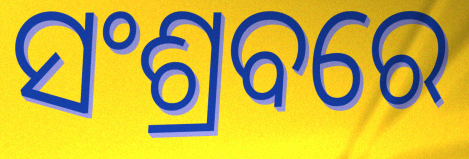
ସଂଶ୍ରବରେ